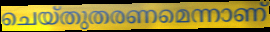
ചെയ്തുതരണമെന്നാണ്